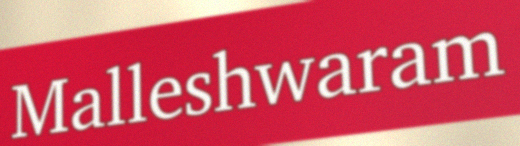
Malleshwaram